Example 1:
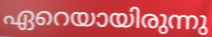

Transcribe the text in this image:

ഏറെയായിരുന്നു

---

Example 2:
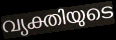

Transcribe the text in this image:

വ്യക്തിയുടെ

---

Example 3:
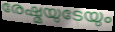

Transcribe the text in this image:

രേഷ്മയുടേയും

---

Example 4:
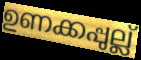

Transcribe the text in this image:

ഉണക്കപ്പുല്ല്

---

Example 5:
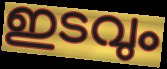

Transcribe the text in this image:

ഇടവും